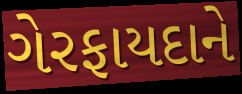
ગેરફાયદાને